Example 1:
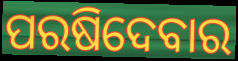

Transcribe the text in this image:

ପରଷିଦେବାର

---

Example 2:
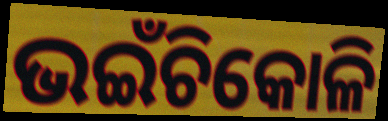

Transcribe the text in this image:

ଭଇଁଚିକୋଳି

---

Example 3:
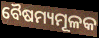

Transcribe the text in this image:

ବୈଷମ୍ୟମୂଳକ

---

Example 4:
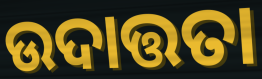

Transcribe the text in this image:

ଉଦାତ୍ତତା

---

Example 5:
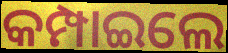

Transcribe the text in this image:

କମ୍ପାଇଲେ